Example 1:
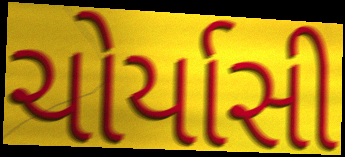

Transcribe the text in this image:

ચોર્યાસી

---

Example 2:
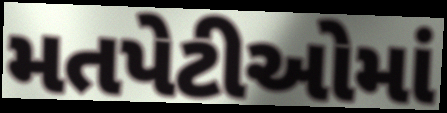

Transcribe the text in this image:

મતપેટીઓમાં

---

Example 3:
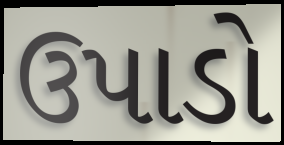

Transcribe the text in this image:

ઉપાડો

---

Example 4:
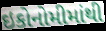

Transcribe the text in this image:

ઇકોનોમીમાંથી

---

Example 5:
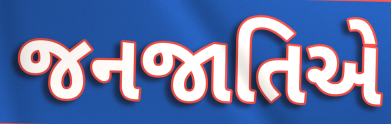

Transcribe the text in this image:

જનજાતિએ